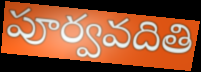
పూర్వవదితి